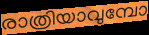
രാത്രിയാവുമ്പോ